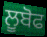
ਲੂਬੋਫ